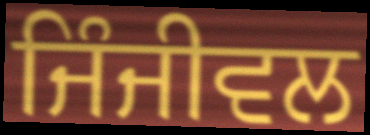
ਜਿੰਜੀਵਲ